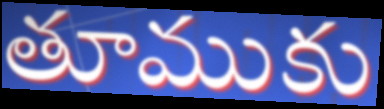
తూముకు